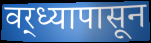
वर्ध्यापासून